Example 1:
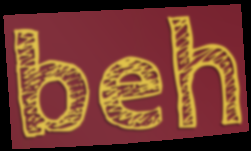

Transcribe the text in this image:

beh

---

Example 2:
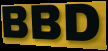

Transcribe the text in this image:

BBD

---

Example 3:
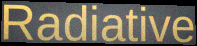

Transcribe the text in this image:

Radiative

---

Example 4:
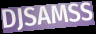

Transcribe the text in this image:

DJSAMSS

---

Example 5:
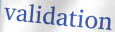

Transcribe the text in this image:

validation